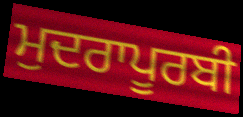
ਮੁਦਰਾਪੂਰਬੀ